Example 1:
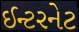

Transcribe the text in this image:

ઈન્ટરનેટ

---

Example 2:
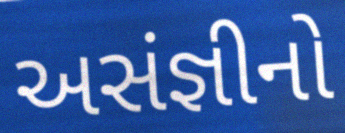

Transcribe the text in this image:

અસંજ્ઞીનો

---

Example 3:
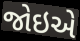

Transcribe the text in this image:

જોઇએ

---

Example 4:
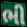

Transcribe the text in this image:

ભી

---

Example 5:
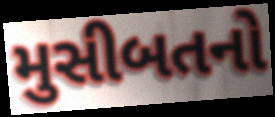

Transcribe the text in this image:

મુસીબતનો